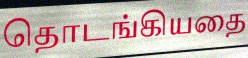
தொடங்கியதை